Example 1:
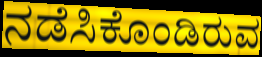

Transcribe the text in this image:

ನಡೆಸಿಕೊಂಡಿರುವ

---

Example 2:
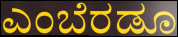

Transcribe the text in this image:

ಎಂಬೆರಡೂ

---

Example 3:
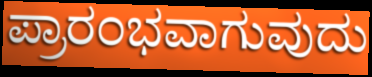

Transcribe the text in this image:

ಪ್ರಾರಂಭವಾಗುವುದು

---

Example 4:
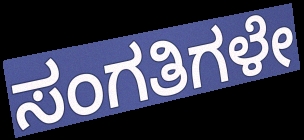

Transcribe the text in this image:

ಸಂಗತಿಗಳೇ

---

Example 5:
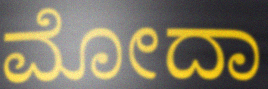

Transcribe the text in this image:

ಮೋದಾ